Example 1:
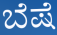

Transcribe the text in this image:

ಬೆಷೆ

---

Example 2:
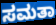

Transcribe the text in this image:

ಸಮತಾ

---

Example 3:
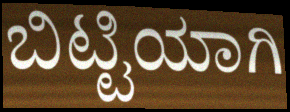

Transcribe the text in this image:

ಬಿಟ್ಟಿಯಾಗಿ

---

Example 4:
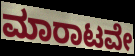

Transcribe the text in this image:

ಮಾರಾಟವೇ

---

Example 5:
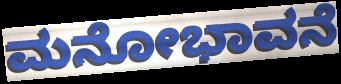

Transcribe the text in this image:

ಮನೋಭಾವನೆ